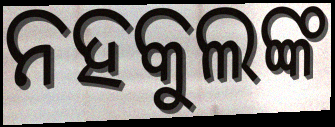
ନହକୁଲଙ୍କ